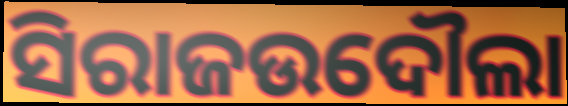
ସିରାଜଉଦୌଲା